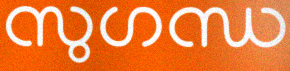
സുഗന്ധ